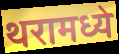
थरामध्ये